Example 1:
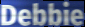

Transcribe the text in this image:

Debbie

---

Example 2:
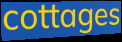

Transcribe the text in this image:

cottages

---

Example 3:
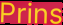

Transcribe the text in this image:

Prins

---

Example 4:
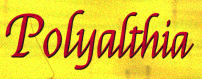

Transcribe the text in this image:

Polyalthia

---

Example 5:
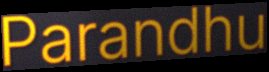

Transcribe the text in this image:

Parandhu